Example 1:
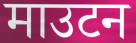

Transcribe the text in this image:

माउटन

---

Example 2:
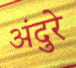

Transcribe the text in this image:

अंदुरे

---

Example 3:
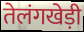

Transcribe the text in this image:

तेलंगखेड़ी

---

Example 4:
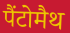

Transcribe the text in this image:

पैंटोमैथ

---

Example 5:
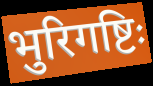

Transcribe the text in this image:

भुरिगष्टिः